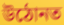
উঠোনত